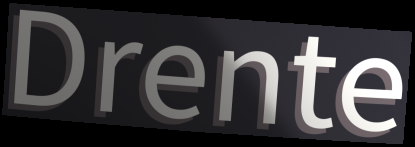
Drente